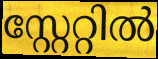
സ്റ്റേറ്റിൽ